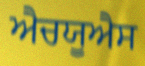
ਐਚਯੂਐਸ